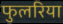
फुलरिया